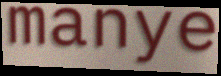
manye